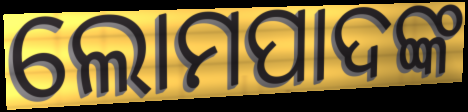
ଲୋମପାଦଙ୍କ